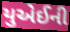
યુએઈની